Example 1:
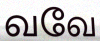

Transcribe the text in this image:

வவே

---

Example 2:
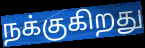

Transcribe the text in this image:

நக்குகிறது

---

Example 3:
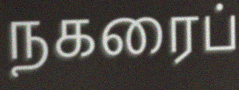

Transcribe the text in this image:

நகரைப்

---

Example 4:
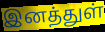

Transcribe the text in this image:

இனத்துள்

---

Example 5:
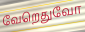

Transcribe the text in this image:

வேறெதுவோ